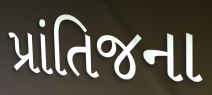
પ્રાંતિજના